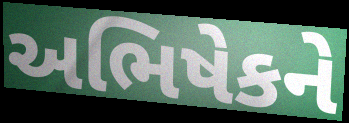
અભિષેકને